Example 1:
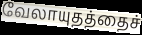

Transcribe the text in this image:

வேலாயுதத்தைச்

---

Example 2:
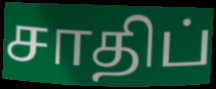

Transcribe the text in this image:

சாதிப்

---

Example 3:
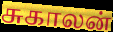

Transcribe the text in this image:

சுகாலன்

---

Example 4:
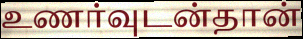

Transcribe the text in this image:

உணர்வுடன்தான்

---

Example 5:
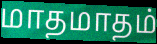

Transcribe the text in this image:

மாதமாதம்